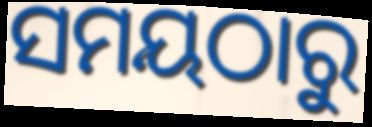
ସମୟଠାରୁ